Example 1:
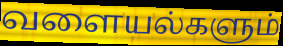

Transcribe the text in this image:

வளையல்களும்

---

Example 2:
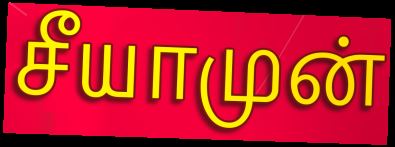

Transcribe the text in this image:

சீயாமுன்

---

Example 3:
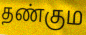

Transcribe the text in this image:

தண்கும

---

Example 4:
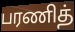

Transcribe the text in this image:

பரணித்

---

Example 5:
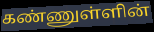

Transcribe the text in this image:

கண்ணுள்ளின்